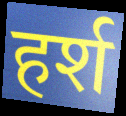
हर्श